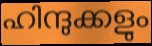
ഹിന്ദുക്കളും